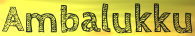
Ambalukku